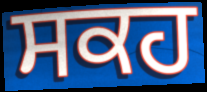
ਸਕਹ